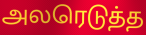
அலரெடுத்த